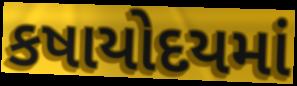
કષાયોદયમાં